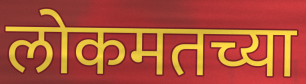
लोकमतच्या